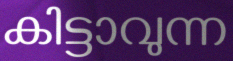
കിട്ടാവുന്ന